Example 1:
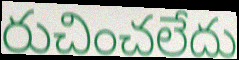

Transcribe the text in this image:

రుచించలేదు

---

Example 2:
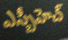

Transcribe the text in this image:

ఎస్బీహెచ్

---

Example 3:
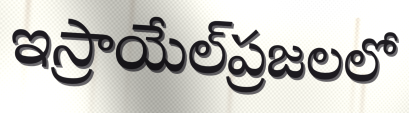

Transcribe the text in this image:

ఇస్రాయేల్‌ప్రజలలో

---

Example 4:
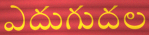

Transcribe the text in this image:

ఎదుగుదల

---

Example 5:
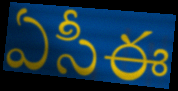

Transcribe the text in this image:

ఏసీఈ